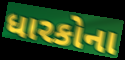
ધારકોના